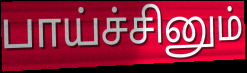
பாய்ச்சினும்